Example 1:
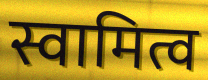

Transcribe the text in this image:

स्वामित्व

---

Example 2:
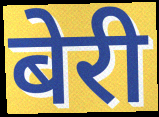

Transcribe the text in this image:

बेरी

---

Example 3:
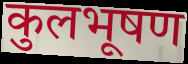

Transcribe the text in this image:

कुलभूषण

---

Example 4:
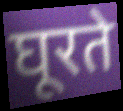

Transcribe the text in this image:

घूरते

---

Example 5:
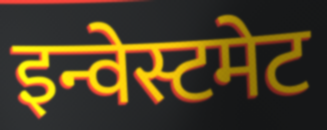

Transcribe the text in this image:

इन्वेस्टमेट